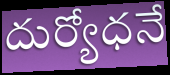
దుర్యోధనే